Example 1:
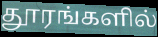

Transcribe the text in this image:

தூரங்களில்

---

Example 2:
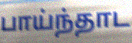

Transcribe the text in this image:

பாய்ந்தாட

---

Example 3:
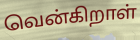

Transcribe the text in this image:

வென்கிறாள்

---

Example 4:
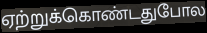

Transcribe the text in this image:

ஏற்றுக்கொண்டதுபோல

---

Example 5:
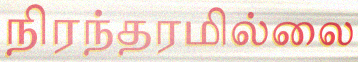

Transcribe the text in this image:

நிரந்தரமில்லை